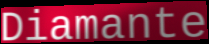
Diamante